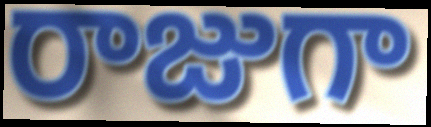
రాజుగా